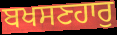
ਬਖਸਣਹਾਰੁ